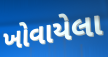
ખોવાયેલા